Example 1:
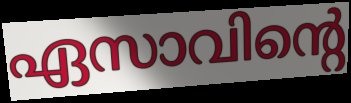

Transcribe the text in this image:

ഏസാവിന്റെ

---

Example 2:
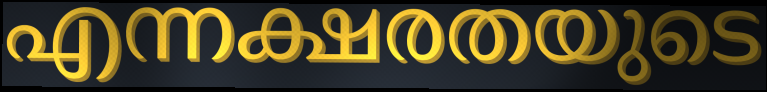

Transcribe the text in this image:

എന്നക്ഷരതയുടെ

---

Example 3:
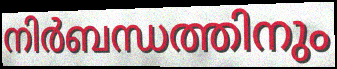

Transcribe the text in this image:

നിർബന്ധത്തിനും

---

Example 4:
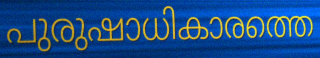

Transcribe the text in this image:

പുരുഷാധികാരത്തെ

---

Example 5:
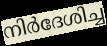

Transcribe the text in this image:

നിർദേശിച്ച